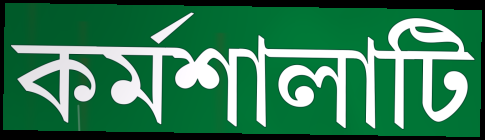
কর্মশালাটি